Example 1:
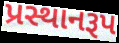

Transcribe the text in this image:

પ્રસ્થાનરૂપ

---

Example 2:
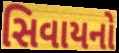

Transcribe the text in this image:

સિવાયનો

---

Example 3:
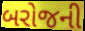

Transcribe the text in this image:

બરોજની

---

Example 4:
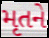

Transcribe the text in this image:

મૃતને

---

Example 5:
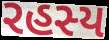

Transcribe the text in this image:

રહસ્ય